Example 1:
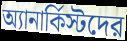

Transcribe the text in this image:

অ্যানার্কিস্টদের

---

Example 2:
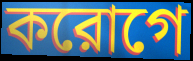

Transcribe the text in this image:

করোগে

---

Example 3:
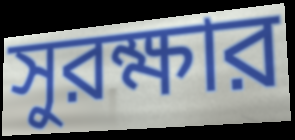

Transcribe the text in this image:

সুরক্ষার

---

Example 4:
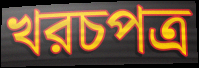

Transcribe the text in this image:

খরচপত্র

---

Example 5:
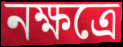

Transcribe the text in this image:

নক্ষত্রে